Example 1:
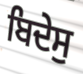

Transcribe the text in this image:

ਬਿਦੇਸੁ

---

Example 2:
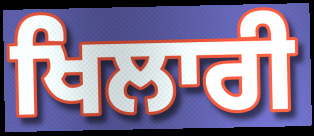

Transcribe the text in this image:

ਖਿਲਾਰੀ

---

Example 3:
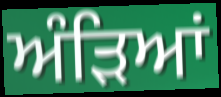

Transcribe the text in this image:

ਅੰੜਿਆਂ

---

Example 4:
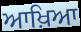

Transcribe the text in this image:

ਆਖ਼ਿਆ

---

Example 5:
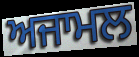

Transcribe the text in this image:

ਅਜਾਮਲ